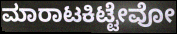
ಮಾರಾಟಕಿಟ್ಟೇವೋ